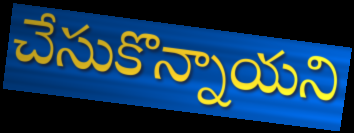
చేసుకొన్నాయని